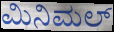
ಮಿನಿಮಲ್